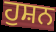
ਹੁਸ਼ਨ